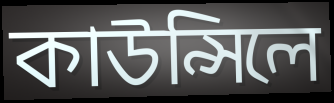
কাউন্সিলে